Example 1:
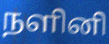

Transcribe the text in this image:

நளினி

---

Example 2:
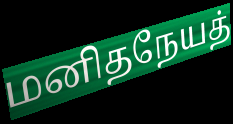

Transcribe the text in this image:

மனிதநேயத்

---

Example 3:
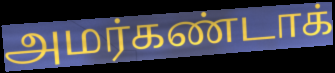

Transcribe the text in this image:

அமர்கண்டாக்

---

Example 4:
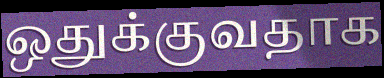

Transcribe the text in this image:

ஒதுக்குவதாக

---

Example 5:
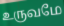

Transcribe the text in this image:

உருவமே